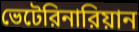
ভেটেরিনারিয়ান